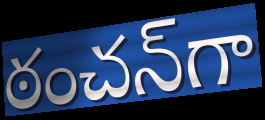
ఠంచన్‌గా